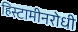
हिस्टामीनरोधी